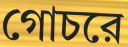
গোচরে